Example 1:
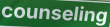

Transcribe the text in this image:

counseling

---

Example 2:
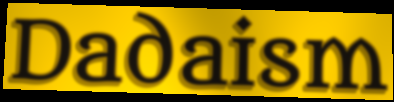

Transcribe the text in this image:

Dadaism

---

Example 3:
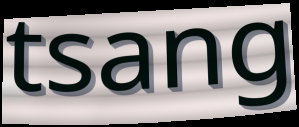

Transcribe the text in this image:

tsang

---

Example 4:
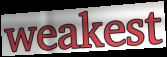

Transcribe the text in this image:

weakest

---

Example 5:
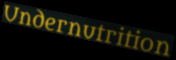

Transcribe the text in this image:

Undernutrition